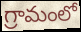
గ్రామంలో